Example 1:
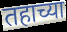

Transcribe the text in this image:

तहाच्या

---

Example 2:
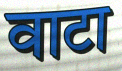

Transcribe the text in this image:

वाटा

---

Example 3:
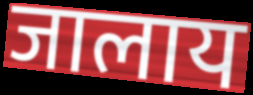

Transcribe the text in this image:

जालाय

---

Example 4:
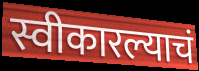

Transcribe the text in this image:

स्वीकारल्याचं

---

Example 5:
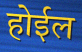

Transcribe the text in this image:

होईल